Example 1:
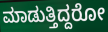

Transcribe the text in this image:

ಮಾಡುತ್ತಿದ್ದರೋ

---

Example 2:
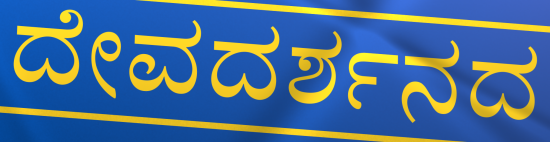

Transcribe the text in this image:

ದೇವದರ್ಶನದ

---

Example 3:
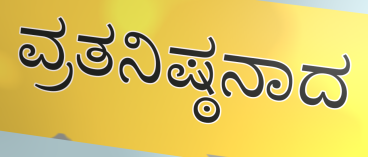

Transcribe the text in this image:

ವ್ರತನಿಷ್ಠನಾದ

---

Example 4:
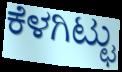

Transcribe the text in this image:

ಕೆಳಗಿಟ್ಟು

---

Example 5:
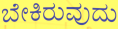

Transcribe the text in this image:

ಬೇಕಿರುವುದು